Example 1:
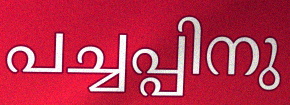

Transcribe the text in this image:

പച്ചപ്പിനു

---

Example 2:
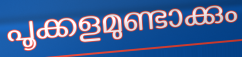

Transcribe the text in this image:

പൂക്കളമുണ്ടാക്കും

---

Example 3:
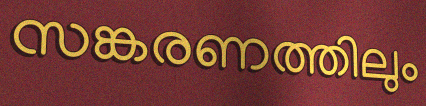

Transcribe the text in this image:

സങ്കരണത്തിലും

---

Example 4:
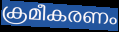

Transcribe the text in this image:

ക്രമീകരണം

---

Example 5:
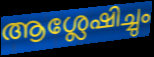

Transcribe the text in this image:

ആശ്ലേഷിച്ചും